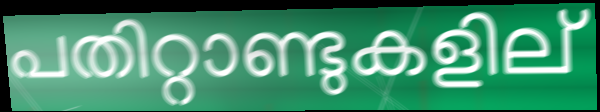
പതിറ്റാണ്ടുകളില്